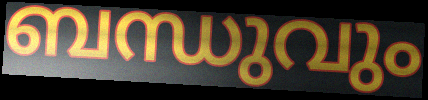
ബന്ധുവും